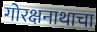
गोरक्षनाथाचा